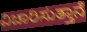
ವಿಚಾರಿಸುತ್ತಾನೆ